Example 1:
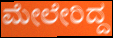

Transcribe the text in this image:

ಮೇಲೇರಿದ್ದ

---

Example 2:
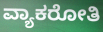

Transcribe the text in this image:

ವ್ಯಾಕರೋತಿ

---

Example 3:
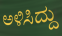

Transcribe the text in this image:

ಅಳಿಸಿದ್ದು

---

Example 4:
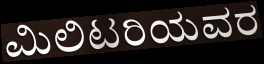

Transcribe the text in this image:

ಮಿಲಿಟರಿಯವರ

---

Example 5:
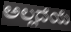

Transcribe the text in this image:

ಅಲ್ಲದೆಯೆ